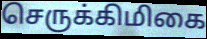
செருக்கிமிகை